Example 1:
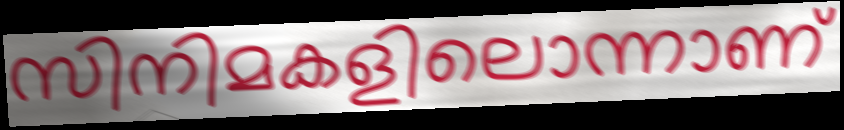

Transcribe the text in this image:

സിനിമകളിലൊന്നാണ്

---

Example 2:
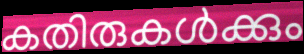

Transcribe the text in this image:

കതിരുകൾക്കും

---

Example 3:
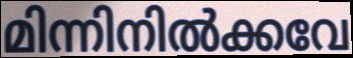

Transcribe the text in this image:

മിന്നിനിൽക്കവേ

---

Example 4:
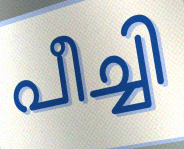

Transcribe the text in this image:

പീച്ചി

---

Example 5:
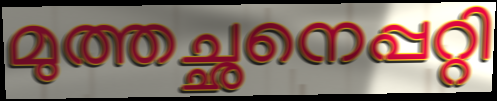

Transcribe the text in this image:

മുത്തച്ഛനെപ്പറ്റി